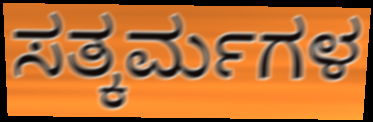
ಸತ್ಕರ್ಮಗಳ